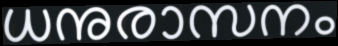
ധനുരാസനം